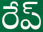
రేప్